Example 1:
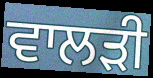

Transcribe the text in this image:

ਵਾਲੜੀ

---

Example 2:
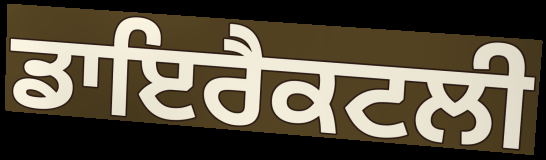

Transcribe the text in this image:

ਡਾਇਰੈਕਟਲੀ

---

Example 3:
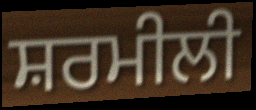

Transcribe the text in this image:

ਸ਼ਰਮੀਲੀ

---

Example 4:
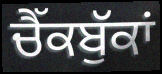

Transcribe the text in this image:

ਚੈੱਕਬੁੱਕਾਂ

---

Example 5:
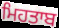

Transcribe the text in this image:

ਮਿਹਤਾਬ